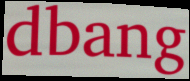
dbang